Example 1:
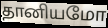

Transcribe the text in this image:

தானியமோ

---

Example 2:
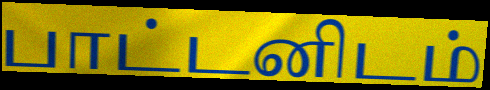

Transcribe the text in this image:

பாட்டனிடம்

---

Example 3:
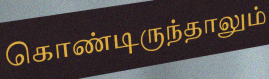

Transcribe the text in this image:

கொண்டிருந்தாலும்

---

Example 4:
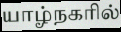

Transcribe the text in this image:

யாழ்நகரில்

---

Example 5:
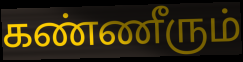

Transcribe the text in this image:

கண்ணீரும்